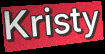
Kristy